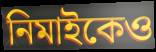
নিমাইকেও